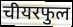
चीयरफुल